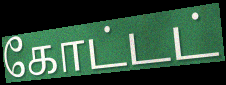
கோட்டட்